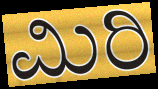
ಮಿರಿ